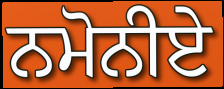
ਨਮੋਨੀਏ